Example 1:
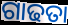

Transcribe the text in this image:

ଗାଢତା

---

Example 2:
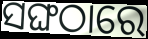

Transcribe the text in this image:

ସଙ୍ଘଠାରେ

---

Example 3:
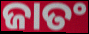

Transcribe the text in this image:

ଜାତଂ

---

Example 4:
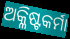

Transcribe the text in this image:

ଅକ୍ଳିଷ୍ଟକର୍ମା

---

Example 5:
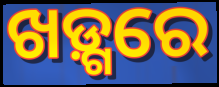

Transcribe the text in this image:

ଖଡ଼୍ଗରେ